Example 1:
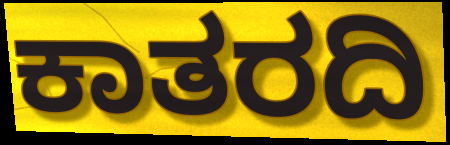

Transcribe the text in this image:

ಕಾತರದಿ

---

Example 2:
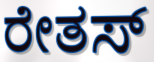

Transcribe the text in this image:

ರೇತಸ್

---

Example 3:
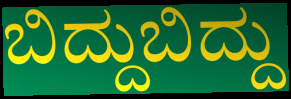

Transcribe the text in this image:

ಬಿದ್ದುಬಿದ್ದು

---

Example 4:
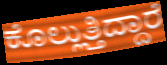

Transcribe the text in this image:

ಕೊಲ್ಲುತ್ತಿದ್ದಾರೆ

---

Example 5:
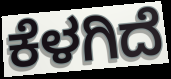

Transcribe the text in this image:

ಕೆಳಗಿದೆ